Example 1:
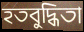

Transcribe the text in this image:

হতবুদ্ধিতা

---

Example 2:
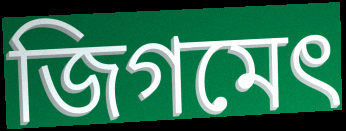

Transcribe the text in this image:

জিগমেৎ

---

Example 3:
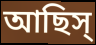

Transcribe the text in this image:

আছিস্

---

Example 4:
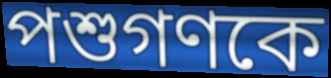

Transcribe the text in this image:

পশুগণকে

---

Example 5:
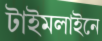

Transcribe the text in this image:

টাইমলাইনে